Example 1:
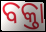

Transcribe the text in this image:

ବକ୍ତା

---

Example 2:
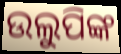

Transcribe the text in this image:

ଉଲୁପିଙ୍କ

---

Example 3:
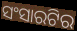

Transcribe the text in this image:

ସଂସାରଟିର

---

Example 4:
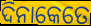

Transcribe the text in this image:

ଦିନାକେତେ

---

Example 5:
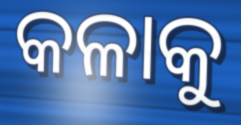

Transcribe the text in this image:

କଳାକୁ